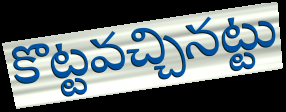
కొట్టవచ్చినట్టు